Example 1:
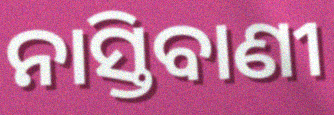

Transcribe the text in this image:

ନାସ୍ତିବାଣୀ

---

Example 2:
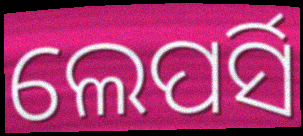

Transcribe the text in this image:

ଲେପର୍ସି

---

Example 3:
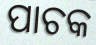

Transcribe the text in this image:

ପାଚକ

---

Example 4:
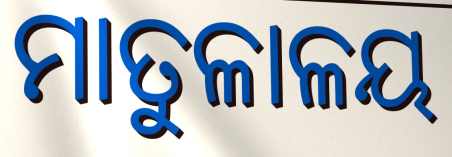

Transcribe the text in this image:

ମାତୁଳାଳୟ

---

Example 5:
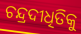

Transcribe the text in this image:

ଚନ୍ଦ୍ରଦୀଧିତିକୁ